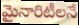
మైనారిటీలనే